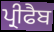
ਪ੍ਰੀਫੈਬ